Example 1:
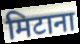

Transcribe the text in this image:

मिटाना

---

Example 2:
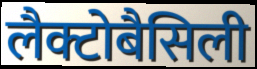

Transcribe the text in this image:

लैक्टोबैसिली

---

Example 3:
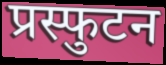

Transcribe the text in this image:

प्रस्‍फुटन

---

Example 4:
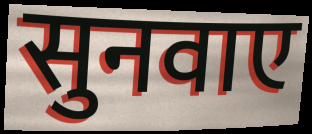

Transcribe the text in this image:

सुनवाए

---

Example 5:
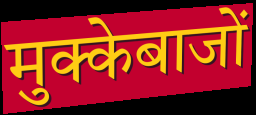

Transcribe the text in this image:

मुक्केबाजों